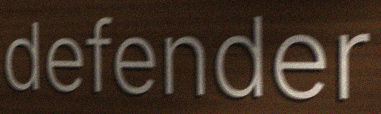
defender